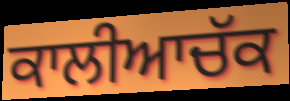
ਕਾਲੀਆਚੱਕ